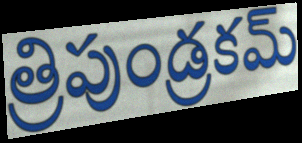
త్రిపుండ్రకమ్